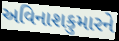
અવિનાશકુમારને